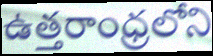
ఉత్తరాంధ్రలోని